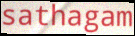
sathagam